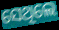
ସେଥିଲେ